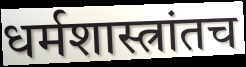
धर्मशास्त्रांतच